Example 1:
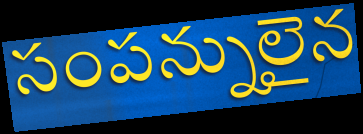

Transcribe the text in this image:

సంపన్నులైన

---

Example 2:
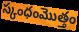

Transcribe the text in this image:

స్కంధంమొత్తం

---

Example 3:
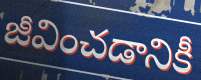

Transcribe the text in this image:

జీవించడానికీ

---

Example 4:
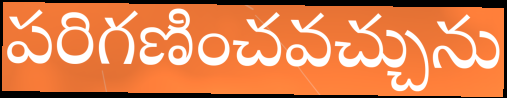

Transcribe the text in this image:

పరిగణించవచ్చును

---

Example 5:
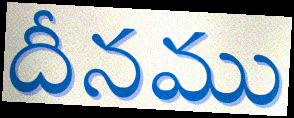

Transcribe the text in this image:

దీనము